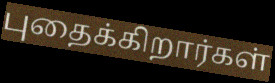
புதைக்கிறார்கள்